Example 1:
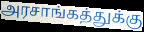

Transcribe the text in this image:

அரசாங்கத்துக்கு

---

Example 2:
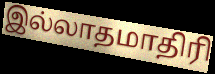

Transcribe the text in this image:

இல்லாதமாதிரி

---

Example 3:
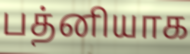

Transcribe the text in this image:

பத்னியாக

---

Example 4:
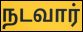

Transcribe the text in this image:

நடவார்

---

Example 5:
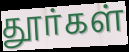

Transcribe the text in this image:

தூர்கள்